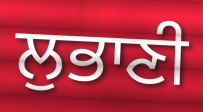
ਲੁਭਾਣੀ